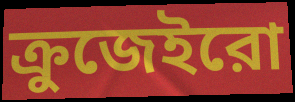
ক্রুজেইরো